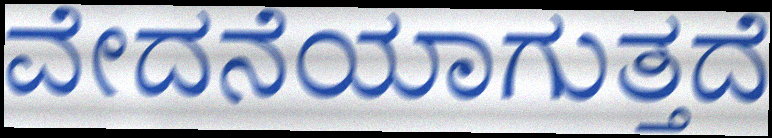
ವೇದನೆಯಾಗುತ್ತದೆ